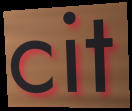
cit